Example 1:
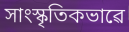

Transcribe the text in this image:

সাংস্কৃতিকভাৱে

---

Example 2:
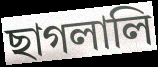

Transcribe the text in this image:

ছাগলালি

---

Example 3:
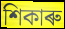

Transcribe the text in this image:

শিকাৰু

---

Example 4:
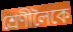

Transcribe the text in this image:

শ্ৰেণীলৈকে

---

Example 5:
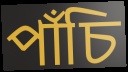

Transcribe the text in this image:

পাঁচি